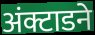
अंक्टाडने